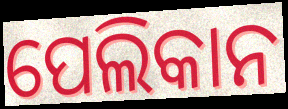
ପେଲିକାନ